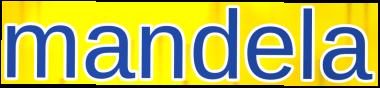
mandela